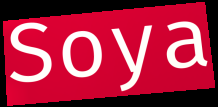
Soya